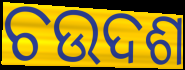
ଚଉଦଶ